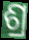
ଶ୍ର